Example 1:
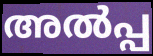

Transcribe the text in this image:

അൽപ്പ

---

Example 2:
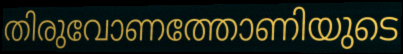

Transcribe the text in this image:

തിരുവോണത്തോണിയുടെ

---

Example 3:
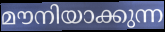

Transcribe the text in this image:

മൗനിയാക്കുന്ന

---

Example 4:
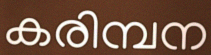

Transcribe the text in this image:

കരിമ്പന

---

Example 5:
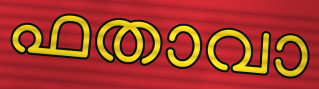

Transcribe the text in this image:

ഫതാവാ